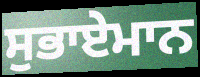
ਸੁਭਾਏਮਾਨ